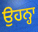
ਉਹਨ੍ਹਾ